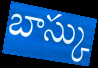
బాస్కు